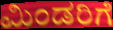
ಮಿಂಡರಿಗೆ